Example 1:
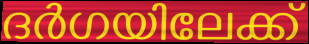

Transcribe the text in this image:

ദർഗയിലേക്ക്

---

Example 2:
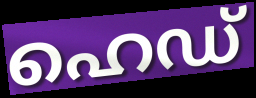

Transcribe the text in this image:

ഹെഡ്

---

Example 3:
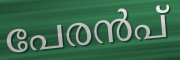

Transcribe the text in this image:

പേരൻപ്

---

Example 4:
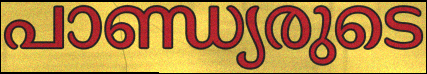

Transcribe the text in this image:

പാണ്ഡ്യരുടെ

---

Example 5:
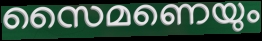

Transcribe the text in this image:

സൈമണെയും